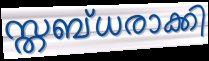
സ്തബ്ധരാക്കി